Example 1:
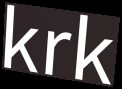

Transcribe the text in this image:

krk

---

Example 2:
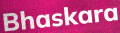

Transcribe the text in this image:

Bhaskara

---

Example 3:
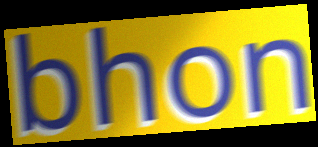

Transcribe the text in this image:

bhon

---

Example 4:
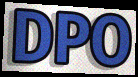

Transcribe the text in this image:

DPO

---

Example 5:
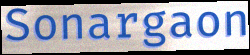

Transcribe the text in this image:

Sonargaon